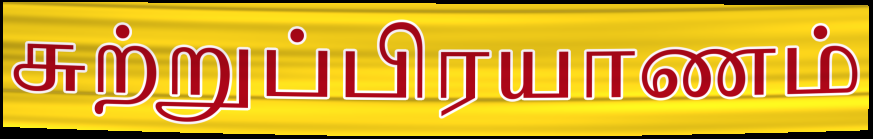
சுற்றுப்பிரயாணம்